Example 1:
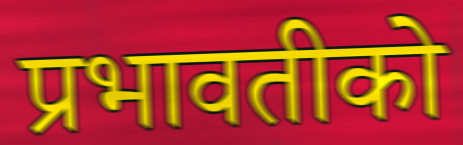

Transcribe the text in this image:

प्रभावतीको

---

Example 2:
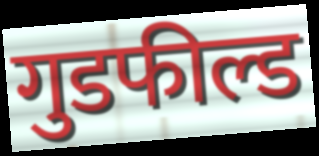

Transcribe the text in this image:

गुडफील्ड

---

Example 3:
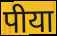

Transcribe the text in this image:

पीया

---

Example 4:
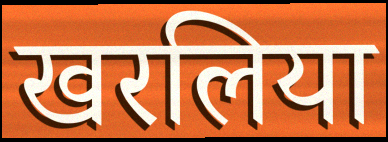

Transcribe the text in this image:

खरलिया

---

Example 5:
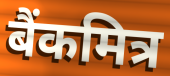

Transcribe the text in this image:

बैंकमित्र